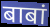
बाबां